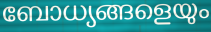
ബോധ്യങ്ങളെയും